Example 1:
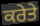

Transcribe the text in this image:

ਕਰੇਤੇ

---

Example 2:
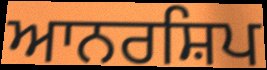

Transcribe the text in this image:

ਆਨਰਸ਼ਿਪ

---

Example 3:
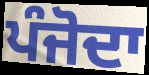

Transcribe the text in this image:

ਪੰਜੋਦਾ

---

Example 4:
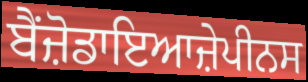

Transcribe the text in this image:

ਬੈਂਜ਼ੋਡਾਇਆਜ਼ੇਪੀਨਸ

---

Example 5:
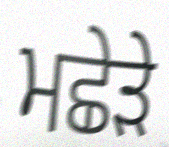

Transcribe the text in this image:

ਮਛੇੜੇ